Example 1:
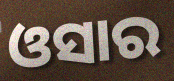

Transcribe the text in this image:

ଓସାର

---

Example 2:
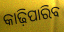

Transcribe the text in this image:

କାଢ଼ିପାରିବ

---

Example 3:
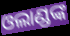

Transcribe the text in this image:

ଓଲାଣ୍ଡଙ୍କ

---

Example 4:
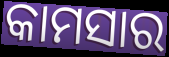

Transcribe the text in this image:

କାମସାର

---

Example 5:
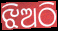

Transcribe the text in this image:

ଝିଅଠି